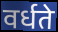
वर्धते